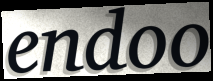
endoo